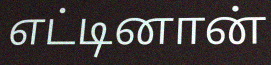
எட்டினான்